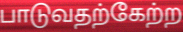
பாடுவதற்கேற்ற